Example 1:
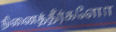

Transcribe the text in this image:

நினைத்தீர்களோ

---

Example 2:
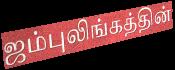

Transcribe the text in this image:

ஜம்புலிங்கத்தின்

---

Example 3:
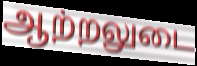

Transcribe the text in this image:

ஆற்றலுடை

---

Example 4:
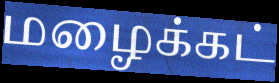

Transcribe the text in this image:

மழைக்கட்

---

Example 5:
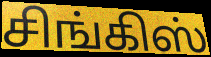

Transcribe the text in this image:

சிங்கிஸ்